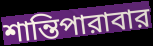
শান্তিপারাবার